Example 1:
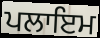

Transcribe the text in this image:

ਪਲਾਇਮ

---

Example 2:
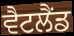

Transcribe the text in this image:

ਵੈਟਲੈਂਡ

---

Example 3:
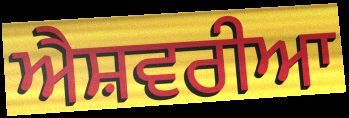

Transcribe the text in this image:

ਐਸ਼ਵਰੀਆ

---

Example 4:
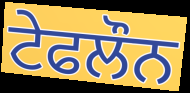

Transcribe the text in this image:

ਟੇਫਲੌਨ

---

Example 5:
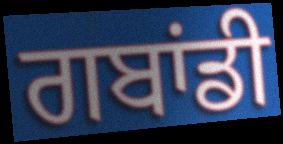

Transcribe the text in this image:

ਗਬਾਂਡੀ